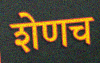
शेणच